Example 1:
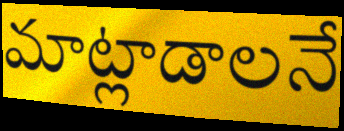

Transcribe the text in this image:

మాట్లాడాలనే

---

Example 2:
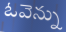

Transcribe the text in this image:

ఓవెన్ను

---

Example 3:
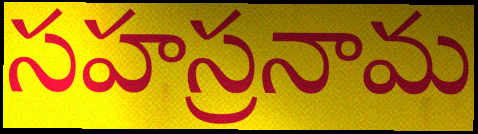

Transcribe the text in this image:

సహస్రనామ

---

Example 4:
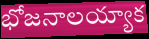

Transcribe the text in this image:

భోజనాలయ్యాక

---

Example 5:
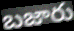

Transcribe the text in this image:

బజారు